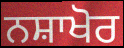
ਨਸ਼ਾਖੋਰ